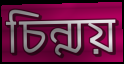
চিন্ময়